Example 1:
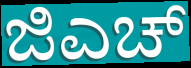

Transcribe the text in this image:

ಜಿಎಚ್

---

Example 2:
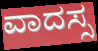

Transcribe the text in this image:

ವಾದಸ್ಸ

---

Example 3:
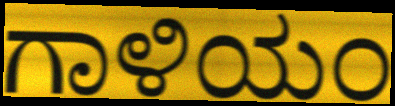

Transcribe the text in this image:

ಗಾಳಿಯಂ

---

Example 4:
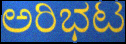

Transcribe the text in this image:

ಅರಿಭಟ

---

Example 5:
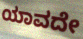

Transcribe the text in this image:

ಯಾವದೇ